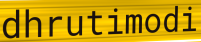
dhrutimodi